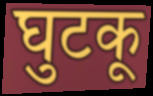
घुटकू